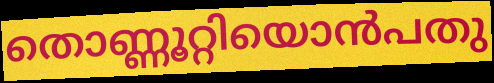
തൊണ്ണൂറ്റിയൊൻപതു